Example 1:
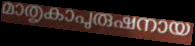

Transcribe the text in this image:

മാതൃകാപുരുഷനായ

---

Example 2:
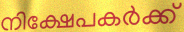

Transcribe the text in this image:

നിക്ഷേപകർക്ക്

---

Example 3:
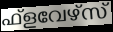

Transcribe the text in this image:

ഫ്ളവേഴ്സ്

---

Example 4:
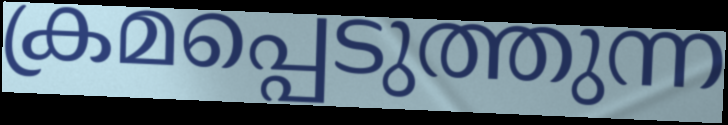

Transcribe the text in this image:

ക്രമപ്പെടുത്തുന്ന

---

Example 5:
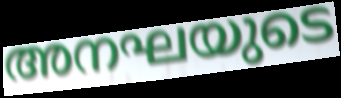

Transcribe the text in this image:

അനഘയുടെ